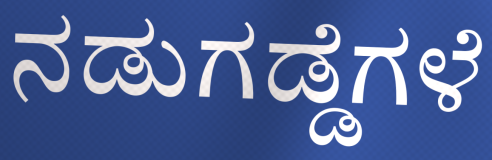
ನಡುಗಡ್ಡೆಗಳೆ